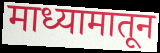
माध्यामातून